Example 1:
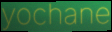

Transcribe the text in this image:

yochane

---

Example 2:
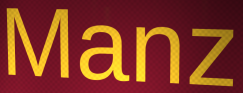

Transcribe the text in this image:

Manz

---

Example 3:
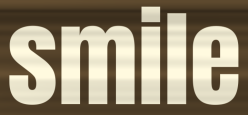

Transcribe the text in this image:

smile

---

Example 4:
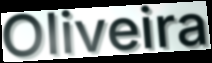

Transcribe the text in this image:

Oliveira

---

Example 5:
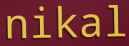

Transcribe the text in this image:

nikal